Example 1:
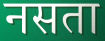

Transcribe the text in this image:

नसता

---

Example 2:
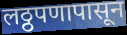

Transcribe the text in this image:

लठ्ठपणापासून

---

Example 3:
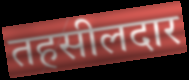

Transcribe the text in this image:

तहसीलदार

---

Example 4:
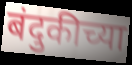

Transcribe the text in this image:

बंदुकीच्या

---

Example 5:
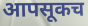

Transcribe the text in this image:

आपसूकच